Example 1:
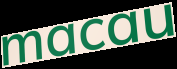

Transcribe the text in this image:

macau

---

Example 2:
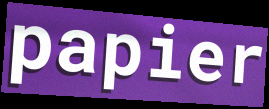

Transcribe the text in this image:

papier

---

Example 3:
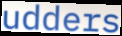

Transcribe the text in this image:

udders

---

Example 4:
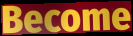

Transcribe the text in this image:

Become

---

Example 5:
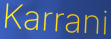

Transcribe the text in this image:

Karrani